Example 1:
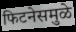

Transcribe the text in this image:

फिटनेसमुळे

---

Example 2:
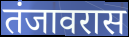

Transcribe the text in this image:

तंजावरास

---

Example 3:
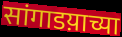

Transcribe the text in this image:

सांगाडय़ाच्या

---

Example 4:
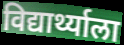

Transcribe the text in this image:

विद्यार्थ्याला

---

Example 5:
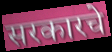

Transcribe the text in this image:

सरकारचे